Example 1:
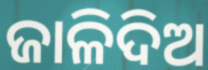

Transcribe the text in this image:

ଜାଳିଦିଅ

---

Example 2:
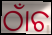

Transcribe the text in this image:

ଠାଁଚ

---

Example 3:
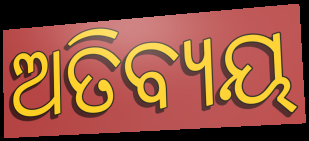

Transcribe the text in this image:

ଅତିବ୍ୟୟ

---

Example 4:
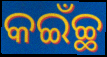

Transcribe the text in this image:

କଇଁଚ୍ଛ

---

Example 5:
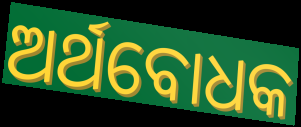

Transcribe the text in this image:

ଅର୍ଥବୋଧକ